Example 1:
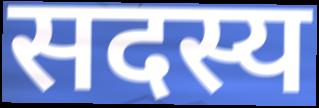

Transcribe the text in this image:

सदस्य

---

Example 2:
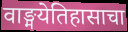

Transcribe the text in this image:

वाङ्मयेतिहासाचा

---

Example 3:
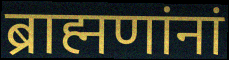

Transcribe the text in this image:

ब्राह्मणांनां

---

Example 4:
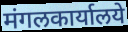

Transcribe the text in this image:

मंगलकार्यालये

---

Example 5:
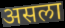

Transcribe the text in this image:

असला